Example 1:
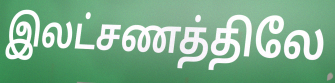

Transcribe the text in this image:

இலட்சணத்திலே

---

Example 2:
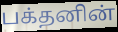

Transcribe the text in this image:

பக்தனின்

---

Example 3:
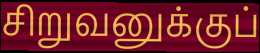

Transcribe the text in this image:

சிறுவனுக்குப்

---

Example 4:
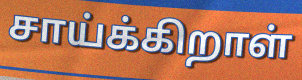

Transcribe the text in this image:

சாய்க்கிறாள்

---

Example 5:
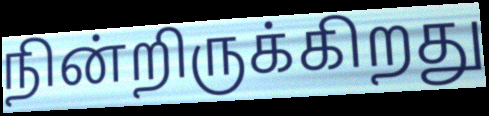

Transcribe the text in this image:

நின்றிருக்கிறது